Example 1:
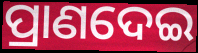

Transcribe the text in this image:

ପ୍ରାଣଦେଇ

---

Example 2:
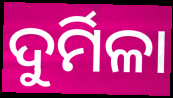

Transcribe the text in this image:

ଦୁର୍ମିଳା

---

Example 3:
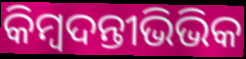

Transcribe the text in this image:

କିମ୍ବଦନ୍ତୀଭିଭିକ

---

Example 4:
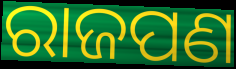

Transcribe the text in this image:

ରାଜପଣ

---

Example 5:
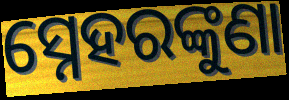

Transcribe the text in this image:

ସ୍ନେହରଙ୍କୁଣା